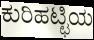
ಕುರಿಹಟ್ಟಿಯ